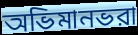
অভিমানভরা